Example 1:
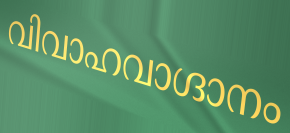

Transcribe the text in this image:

വിവാഹവാഗ്ദാനം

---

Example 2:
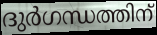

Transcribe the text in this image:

ദുർഗന്ധത്തിന്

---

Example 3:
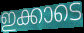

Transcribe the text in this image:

ഇക്കാടെ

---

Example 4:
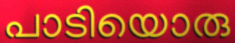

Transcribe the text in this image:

പാടിയൊരു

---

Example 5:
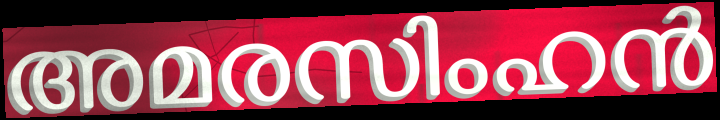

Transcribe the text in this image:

അമരസിംഹൻ